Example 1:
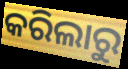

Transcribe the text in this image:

କରିଲାରୁ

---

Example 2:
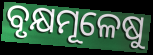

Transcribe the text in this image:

ବୃକ୍ଷମୂଳେଷୁ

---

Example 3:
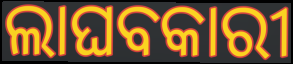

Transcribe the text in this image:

ଲାଘବକାରୀ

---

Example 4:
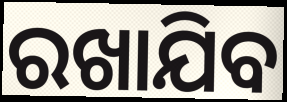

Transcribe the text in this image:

ରଖାଯିବ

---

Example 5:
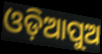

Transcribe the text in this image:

ଓଡ଼ିଆପୁଅ